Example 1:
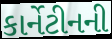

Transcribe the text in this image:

કાર્નેટીનની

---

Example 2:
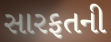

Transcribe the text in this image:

સારફતની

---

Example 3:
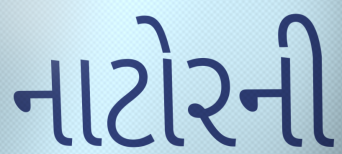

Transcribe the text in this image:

નાટોરની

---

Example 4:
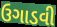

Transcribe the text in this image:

ઉગાડવી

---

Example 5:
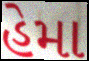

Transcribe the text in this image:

હેમા